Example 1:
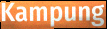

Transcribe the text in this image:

Kampung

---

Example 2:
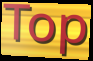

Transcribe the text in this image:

Top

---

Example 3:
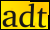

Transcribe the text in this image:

adt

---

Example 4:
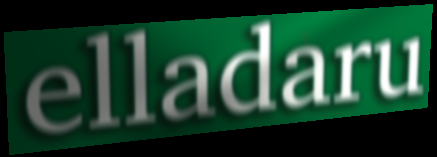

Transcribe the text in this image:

elladaru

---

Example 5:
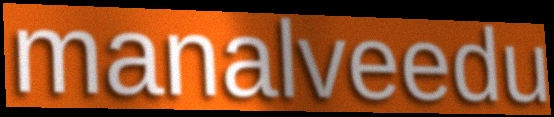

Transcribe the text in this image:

manalveedu